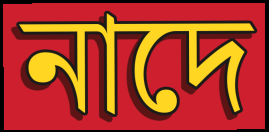
নাদে